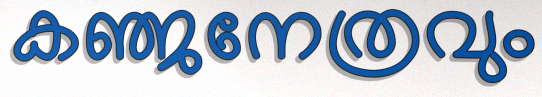
കഞ്ജനേത്രവും